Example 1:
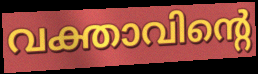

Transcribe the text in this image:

വക്താവിന്റെ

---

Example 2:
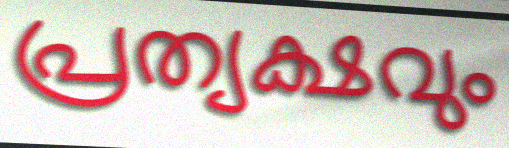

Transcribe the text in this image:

പ്രത്യക്ഷവും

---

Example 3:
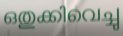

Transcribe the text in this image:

ഒതുക്കിവെച്ചു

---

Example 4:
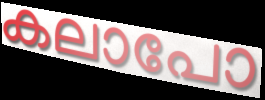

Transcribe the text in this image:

കലാപോ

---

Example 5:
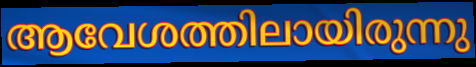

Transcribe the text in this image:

ആവേശത്തിലായിരുന്നു